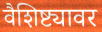
वैशिष्ट्यावर